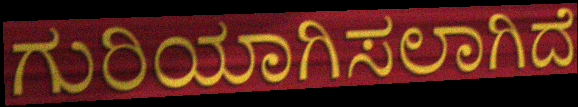
ಗುರಿಯಾಗಿಸಲಾಗಿದೆ